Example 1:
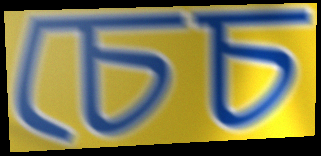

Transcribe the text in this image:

চেচ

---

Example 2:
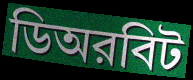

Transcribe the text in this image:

ডিঅরবিট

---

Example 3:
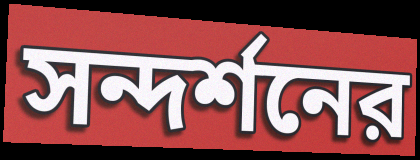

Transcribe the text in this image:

সন্দর্শনের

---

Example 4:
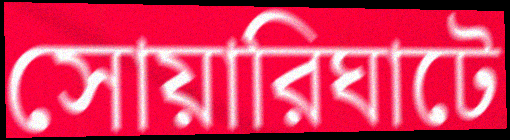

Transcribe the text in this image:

সোয়ারিঘাটে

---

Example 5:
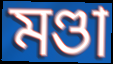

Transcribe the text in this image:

মণ্ডা